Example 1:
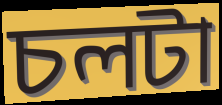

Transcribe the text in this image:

চলটা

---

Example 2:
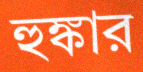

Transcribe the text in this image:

হুঙ্কার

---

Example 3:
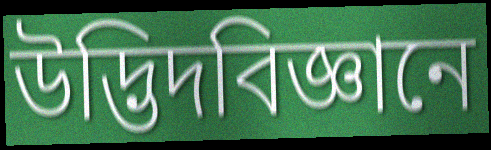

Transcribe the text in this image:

উদ্ভিদবিজ্ঞানে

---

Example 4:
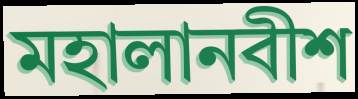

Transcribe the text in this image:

মহালানবীশ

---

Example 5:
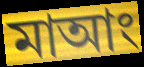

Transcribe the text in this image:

মাআং